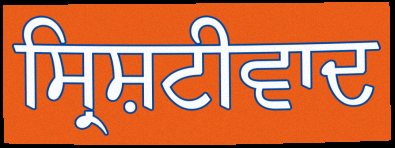
ਸ੍ਰਿਸ਼ਟੀਵਾਦ